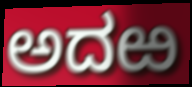
ಅದಱ